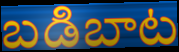
బడిబాట